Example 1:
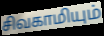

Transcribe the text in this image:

சிவகாமியும்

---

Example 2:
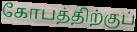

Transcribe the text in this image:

கோபத்திற்குப்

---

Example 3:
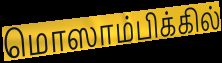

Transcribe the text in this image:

மொஸாம்பிக்கில்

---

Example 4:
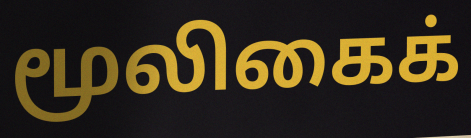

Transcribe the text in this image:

மூலிகைக்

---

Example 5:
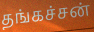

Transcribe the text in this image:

தங்கச்சன்